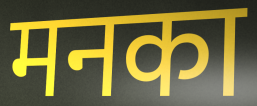
मनका